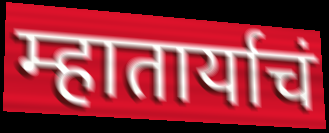
म्हातार्याचं